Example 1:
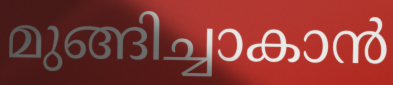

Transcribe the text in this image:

മുങ്ങിച്ചാകാൻ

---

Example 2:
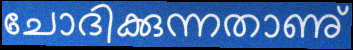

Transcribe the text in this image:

ചോദിക്കുന്നതാണു്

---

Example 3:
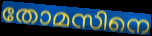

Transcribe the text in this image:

തോമസിനെ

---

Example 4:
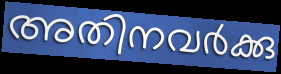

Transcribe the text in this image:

അതിനവർക്കു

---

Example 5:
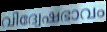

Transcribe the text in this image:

വിദ്വേഷഭാവം